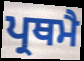
ਪ੍ਰਥਮੈ